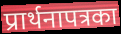
प्रार्थनापत्रका